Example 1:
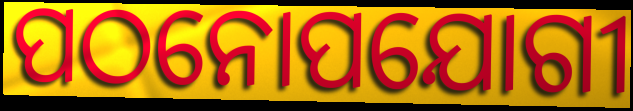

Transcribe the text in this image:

ପଠନୋପଯୋଗୀ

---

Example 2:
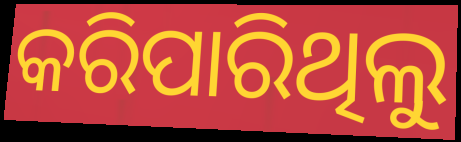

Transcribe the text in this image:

କରିପାରିଥିଲୁ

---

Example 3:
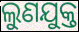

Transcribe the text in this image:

ଲୁଣଯୁକ୍ତ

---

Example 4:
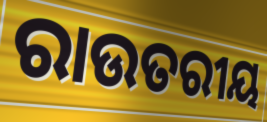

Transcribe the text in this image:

ରାଉତରୀୟ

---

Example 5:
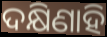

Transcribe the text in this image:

ଦକ୍ଷିଣାହି